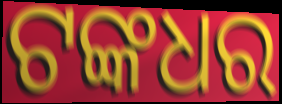
ଟଙ୍କଧର